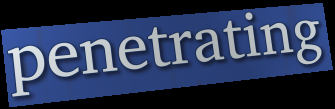
penetrating